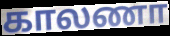
காலணா